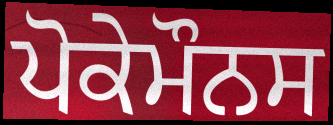
ਪੋਕੇਮੌਨਸ